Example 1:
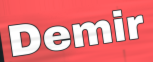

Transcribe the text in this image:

Demir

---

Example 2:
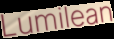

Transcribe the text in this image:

Lumilean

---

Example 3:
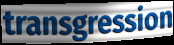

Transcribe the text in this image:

transgression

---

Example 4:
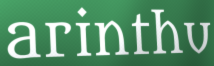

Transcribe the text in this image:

arinthu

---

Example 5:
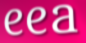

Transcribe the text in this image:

eea